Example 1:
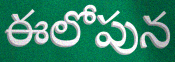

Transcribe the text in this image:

ఈలోపున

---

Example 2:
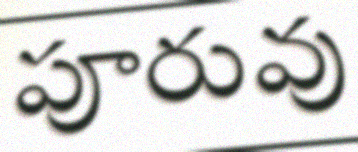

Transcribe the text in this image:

పూరువు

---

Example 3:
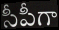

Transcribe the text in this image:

సీపీగా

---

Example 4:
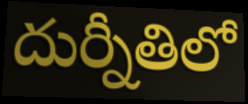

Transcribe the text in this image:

దుర్నీతిలో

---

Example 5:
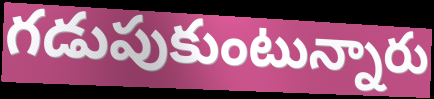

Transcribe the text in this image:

గడుపుకుంటున్నారు